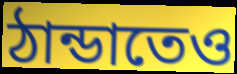
ঠান্ডাতেও